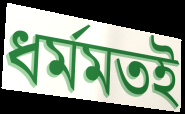
ধর্মমতই